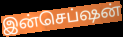
இன்செப்ஷன்